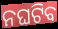
ନଘଟିବ